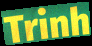
Trinh